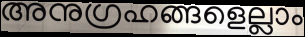
അനുഗ്രഹങ്ങളെല്ലാം